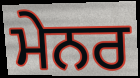
ਮੇਨਰ